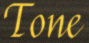
Tone